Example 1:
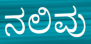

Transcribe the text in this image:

ನಲಿವು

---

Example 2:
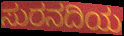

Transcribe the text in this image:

ಸುರನದಿಯ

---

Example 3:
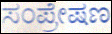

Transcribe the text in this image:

ಸಂಪ್ರೇಷಣ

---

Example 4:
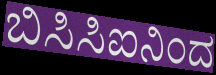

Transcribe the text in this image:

ಬಿಸಿಸಿಐನಿಂದ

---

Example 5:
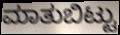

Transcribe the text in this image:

ಮಾತುಬಿಟ್ಟು